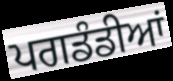
ਪਗਡੰਡੀਆਂ